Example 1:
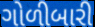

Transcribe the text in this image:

ગોળીબારી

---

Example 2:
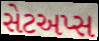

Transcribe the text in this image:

સેટઅપ્સ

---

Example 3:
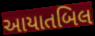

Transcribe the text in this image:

આયાતબિલ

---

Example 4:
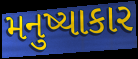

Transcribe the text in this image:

મનુષ્યાકાર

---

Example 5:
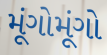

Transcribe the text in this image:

મૂંગોમૂંગો